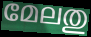
മേലതു